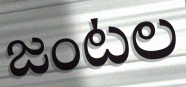
జంటల